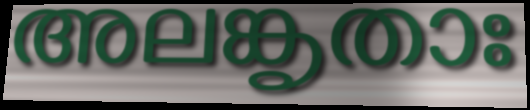
അലങ്കൃതാഃ